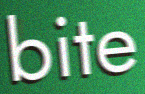
bite